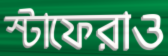
স্টাফেরাও